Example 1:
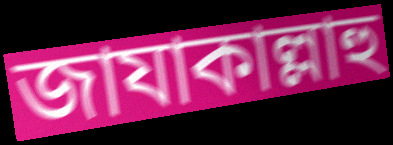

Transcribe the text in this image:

জাযাকাল্লাহু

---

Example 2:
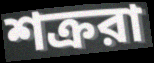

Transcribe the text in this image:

শক্ররা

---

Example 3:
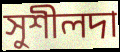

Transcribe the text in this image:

সুশীলদা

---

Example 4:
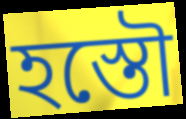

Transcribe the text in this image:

হস্তৌ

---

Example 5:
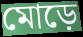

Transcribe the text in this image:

মোড়ে